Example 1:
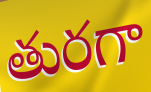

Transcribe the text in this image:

తురగా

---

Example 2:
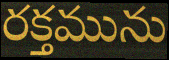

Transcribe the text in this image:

రక్తమును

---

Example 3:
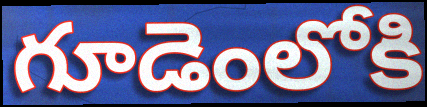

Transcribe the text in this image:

గూడెంలోకి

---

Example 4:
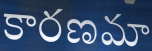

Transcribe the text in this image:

కారణమా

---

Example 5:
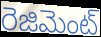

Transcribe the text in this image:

రెజిమెంట్